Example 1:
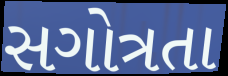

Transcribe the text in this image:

સગોત્રતા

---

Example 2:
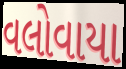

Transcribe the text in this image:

વલોવાયા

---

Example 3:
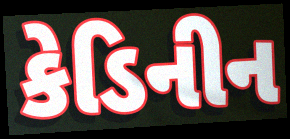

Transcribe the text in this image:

કેડિનીન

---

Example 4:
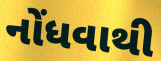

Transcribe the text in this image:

નોંધવાથી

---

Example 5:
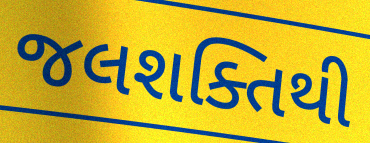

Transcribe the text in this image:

જલશક્તિથી